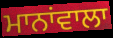
ਮਾਨਾਂਵਾਲਾ